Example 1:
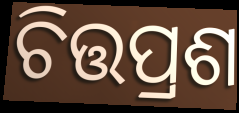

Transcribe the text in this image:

ଚିତ୍ତପ୍ରଶ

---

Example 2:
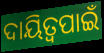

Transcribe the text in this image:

ଦାୟିତ୍ୱପାଇଁ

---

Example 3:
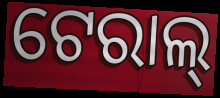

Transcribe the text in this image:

ଟେରାଲ୍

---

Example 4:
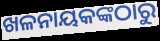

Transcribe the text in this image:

ଖଳନାୟକଙ୍କଠାରୁ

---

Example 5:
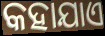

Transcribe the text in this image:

କହାଯାଏ